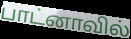
பாட்னாவில்